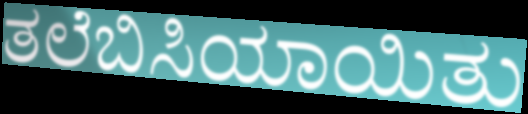
ತಲೆಬಿಸಿಯಾಯಿತು